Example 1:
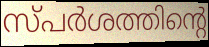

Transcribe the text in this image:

സ്പർശത്തിന്റെ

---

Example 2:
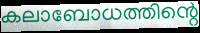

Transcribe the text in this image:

കലാബോധത്തിന്റെ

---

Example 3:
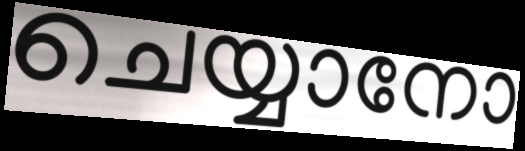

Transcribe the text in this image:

ചെയ്യാനോ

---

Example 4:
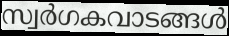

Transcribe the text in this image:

സ്വർഗകവാടങ്ങൾ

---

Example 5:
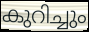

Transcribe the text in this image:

കുറിച്ചും